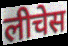
लीचेस